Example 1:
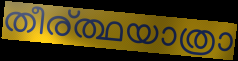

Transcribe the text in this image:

തീര്ത്ഥയാത്രാ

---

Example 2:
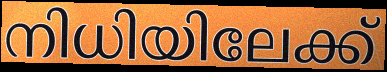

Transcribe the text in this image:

നിധിയിലേക്ക്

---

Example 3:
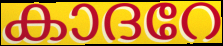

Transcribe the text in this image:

കാദറേ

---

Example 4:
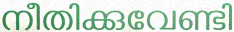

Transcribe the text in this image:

നീതിക്കുവേണ്ടി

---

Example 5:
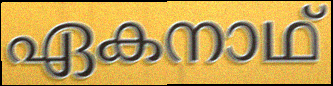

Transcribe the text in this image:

ഏകനാഥ്